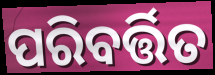
ପରିବର୍ତ୍ତିତ